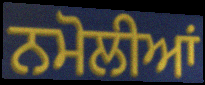
ਨਮੋਲੀਆਂ